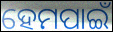
ହେମପାଇଁ